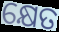
କ୍ଷେତ